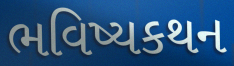
ભવિષ્યકથન